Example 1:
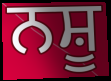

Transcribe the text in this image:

ਨਸ਼ੂ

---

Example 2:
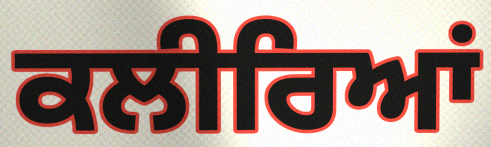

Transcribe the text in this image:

ਕਲੀਰਿਆਂ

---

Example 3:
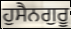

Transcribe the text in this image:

ਹੁਸੈਨਗੁਰੂ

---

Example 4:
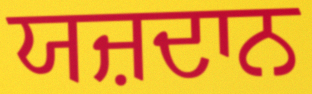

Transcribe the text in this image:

ਯਜ਼ਦਾਨ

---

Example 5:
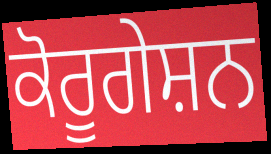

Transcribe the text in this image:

ਕੋਰੂਗੇਸ਼ਨ